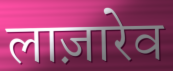
लाज़ारेव